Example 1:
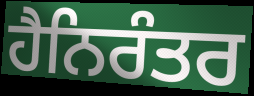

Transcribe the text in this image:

ਹੈਨਿਰੰਤਰ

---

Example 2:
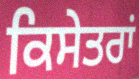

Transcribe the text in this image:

ਕਿਸੇਤਰਾਂ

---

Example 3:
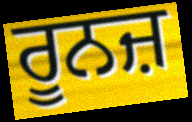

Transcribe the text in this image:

ਰੂਨਜ਼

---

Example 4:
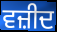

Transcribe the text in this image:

ਵਜ਼ੀਦ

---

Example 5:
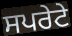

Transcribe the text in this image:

ਸਪਰੇਟੇ